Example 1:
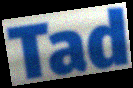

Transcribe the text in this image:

Tad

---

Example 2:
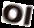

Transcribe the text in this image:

Ol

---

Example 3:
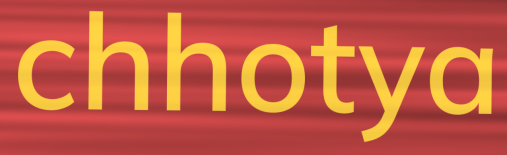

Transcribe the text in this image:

chhotya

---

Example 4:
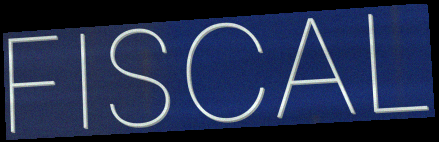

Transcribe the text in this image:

FISCAL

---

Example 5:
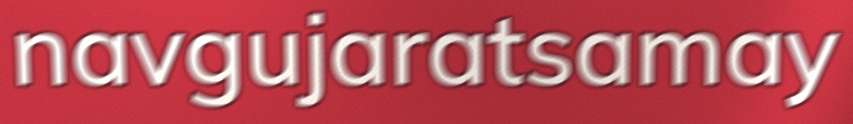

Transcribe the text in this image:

navgujaratsamay